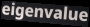
eigenvalue